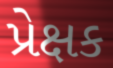
પ્રેક્ષક